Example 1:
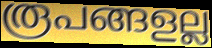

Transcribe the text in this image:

രൂപങ്ങളല്ല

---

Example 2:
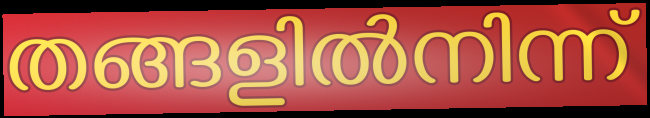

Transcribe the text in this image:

തങ്ങളിൽനിന്ന്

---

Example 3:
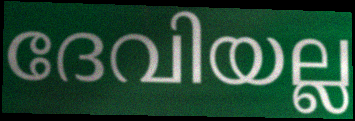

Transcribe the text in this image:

ദേവിയല്ല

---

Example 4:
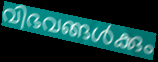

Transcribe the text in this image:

വിഭവങ്ങൾക്കും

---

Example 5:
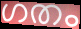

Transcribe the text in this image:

ഗതം